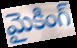
మైకింగ్